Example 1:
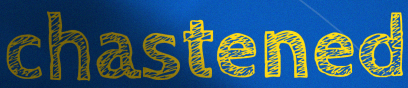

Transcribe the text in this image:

chastened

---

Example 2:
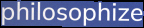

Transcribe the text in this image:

philosophize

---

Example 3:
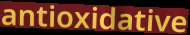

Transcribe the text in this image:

antioxidative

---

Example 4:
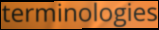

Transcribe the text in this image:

terminologies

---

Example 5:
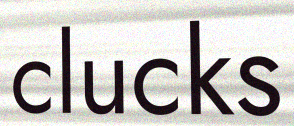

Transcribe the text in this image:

clucks